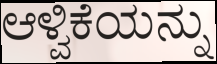
ಆಳ್ವಿಕೆಯನ್ನು